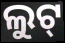
ଲୁଟ୍